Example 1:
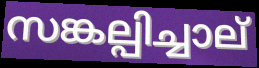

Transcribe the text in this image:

സങ്കല്പിച്ചാല്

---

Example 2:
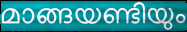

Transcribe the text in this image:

മാങ്ങയണ്ടിയും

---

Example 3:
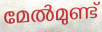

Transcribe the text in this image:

മേൽമുണ്ട്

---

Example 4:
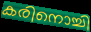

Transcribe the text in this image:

കരിനൊച്ചി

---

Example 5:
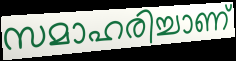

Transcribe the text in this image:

സമാഹരിച്ചാണ്